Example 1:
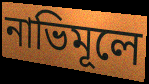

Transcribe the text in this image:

নাভিমূলে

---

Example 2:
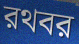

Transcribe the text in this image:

রথবর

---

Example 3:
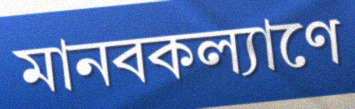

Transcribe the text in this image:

মানবকল্যাণে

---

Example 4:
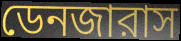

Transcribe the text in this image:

ডেনজারাস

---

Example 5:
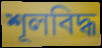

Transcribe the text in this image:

শূলবিদ্ধ